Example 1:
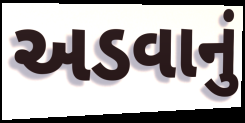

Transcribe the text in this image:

અડવાનું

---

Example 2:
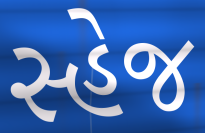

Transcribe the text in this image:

સ્હેજ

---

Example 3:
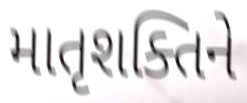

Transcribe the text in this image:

માતૃશક્તિને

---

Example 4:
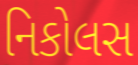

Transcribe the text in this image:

નિકોલસ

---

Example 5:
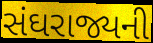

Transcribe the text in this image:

સંઘરાજ્યની